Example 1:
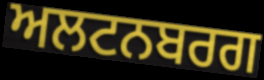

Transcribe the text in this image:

ਅਲਟਨਬਰਗ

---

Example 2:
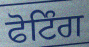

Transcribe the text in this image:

ਫੋਟਿੰਗ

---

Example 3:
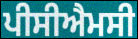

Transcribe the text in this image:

ਪੀਸੀਐਮਸੀ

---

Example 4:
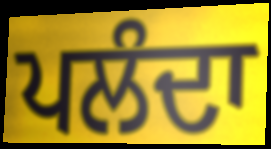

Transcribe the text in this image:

ਪਲੰਦਾ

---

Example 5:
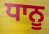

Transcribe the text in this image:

ਧਾਨੂ